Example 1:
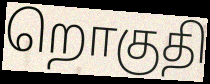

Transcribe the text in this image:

றொகுதி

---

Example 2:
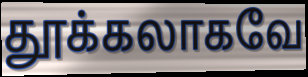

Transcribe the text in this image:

தூக்கலாகவே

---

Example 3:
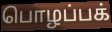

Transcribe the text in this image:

பொழப்பக்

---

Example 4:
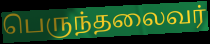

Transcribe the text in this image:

பெருந்தலைவர்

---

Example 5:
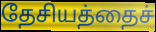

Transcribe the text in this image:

தேசியத்தைச்